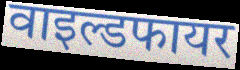
वाइल्डफायर